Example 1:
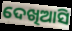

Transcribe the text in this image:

ଦେଖିଆସି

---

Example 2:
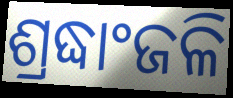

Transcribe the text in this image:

ଶ୍ରଦ୍ଧାଂଜଳି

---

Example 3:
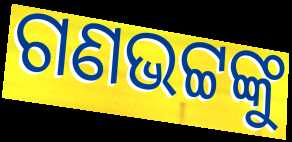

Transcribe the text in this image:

ଗଣଭଟ୍ଟଙ୍କୁ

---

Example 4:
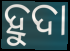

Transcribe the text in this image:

ହୁଦା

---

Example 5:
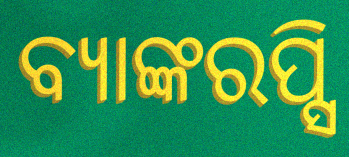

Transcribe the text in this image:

ବ୍ୟାଙ୍କରପ୍ସି